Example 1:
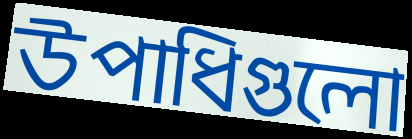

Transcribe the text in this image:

উপাধিগুলো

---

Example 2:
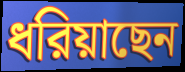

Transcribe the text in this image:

ধরিয়াছেন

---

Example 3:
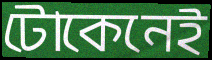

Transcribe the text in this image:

টোকেনেই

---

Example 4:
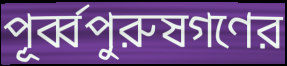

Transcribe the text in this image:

পূর্ব্বপুরুষগণের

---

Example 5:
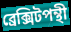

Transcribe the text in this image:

ব্রেক্সিটপন্থী